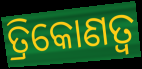
ତ୍ରିକୋଣତ୍ଵ